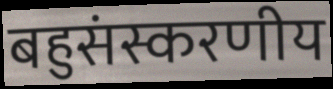
बहुसंस्करणीय